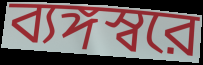
ব্যঙ্গস্বরে